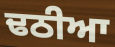
ਢਠੀਆ